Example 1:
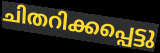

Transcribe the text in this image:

ചിതറിക്കപ്പെട്ടു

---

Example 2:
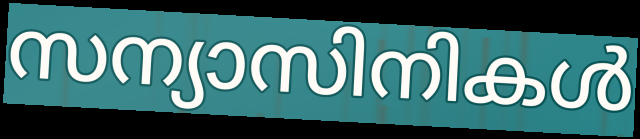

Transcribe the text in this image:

സന്യാസിനികൾ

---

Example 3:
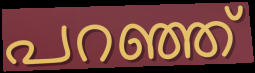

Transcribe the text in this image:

പറഞ്ഞ്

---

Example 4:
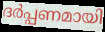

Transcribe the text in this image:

ദർപ്പണമായി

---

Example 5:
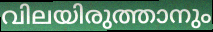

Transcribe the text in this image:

വിലയിരുത്താനും